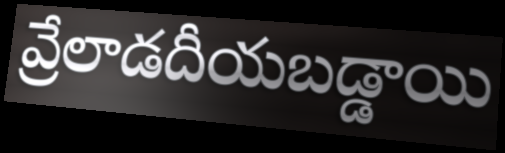
వ్రేలాడదీయబడ్డాయి